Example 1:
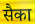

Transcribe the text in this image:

सैका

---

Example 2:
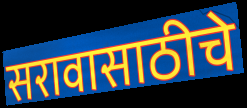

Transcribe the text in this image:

सरावासाठीचे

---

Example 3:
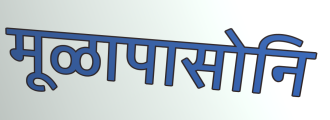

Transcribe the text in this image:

मूळापासोनि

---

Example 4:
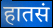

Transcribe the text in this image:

हातसं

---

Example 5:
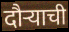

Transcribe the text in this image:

दौर्‍याची